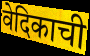
वेदिकाची